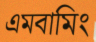
এমবামিং